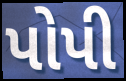
પોપી